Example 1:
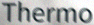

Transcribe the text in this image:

Thermo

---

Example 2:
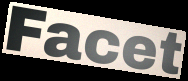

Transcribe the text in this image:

Facet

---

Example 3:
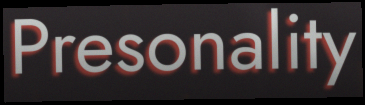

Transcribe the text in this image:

Presonality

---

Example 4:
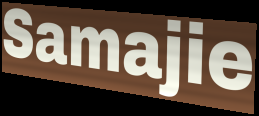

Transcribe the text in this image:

Samajie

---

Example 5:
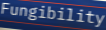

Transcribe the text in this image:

Fungibility